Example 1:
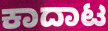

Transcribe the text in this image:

ಕಾದಾಟ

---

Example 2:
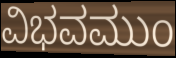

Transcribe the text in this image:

ವಿಭವಮುಂ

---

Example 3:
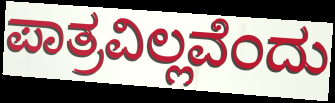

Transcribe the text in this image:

ಪಾತ್ರವಿಲ್ಲವೆಂದು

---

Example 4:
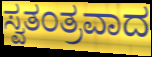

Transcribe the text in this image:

ಸ್ವತಂತ್ರವಾದ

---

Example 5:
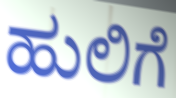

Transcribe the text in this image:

ಹುಲಿಗೆ